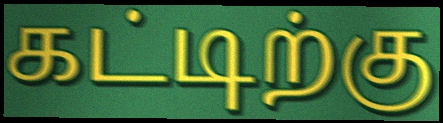
கட்டிற்கு